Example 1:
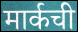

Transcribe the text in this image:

मार्कची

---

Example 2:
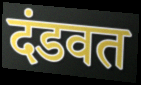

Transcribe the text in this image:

दंडवत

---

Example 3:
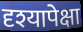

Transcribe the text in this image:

दृश्यापेक्षा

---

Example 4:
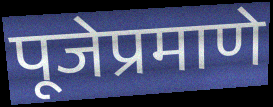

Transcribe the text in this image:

पूजेप्रमाणे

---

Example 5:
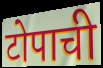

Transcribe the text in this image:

टोपाची